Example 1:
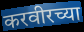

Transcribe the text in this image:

करवीरच्या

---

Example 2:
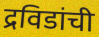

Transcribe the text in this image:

द्रविडांची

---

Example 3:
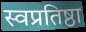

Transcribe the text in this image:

स्वप्रतिष्ठा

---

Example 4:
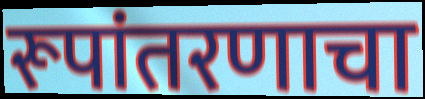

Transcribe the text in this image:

रूपांतरणाचा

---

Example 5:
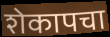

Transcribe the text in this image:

शेकापचा